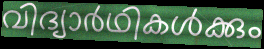
വിദ്യാർഥികൾക്കും